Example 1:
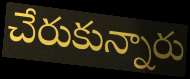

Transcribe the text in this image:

చేరుకున్నారు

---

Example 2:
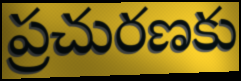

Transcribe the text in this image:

ప్రచురణకు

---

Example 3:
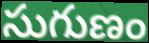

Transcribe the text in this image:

సుగుణం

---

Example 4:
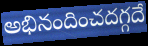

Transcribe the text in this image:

అభినందించదగ్గదే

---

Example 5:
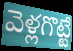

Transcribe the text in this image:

వెళ్లగొట్టే